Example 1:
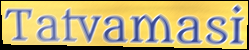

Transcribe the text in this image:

Tatvamasi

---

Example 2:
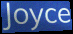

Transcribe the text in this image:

Joyce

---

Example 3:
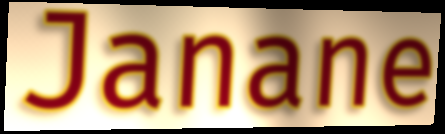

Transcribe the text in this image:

Janane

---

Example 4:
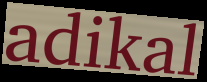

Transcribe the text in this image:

adikal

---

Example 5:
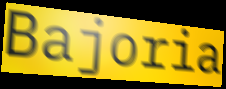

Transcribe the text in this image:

Bajoria